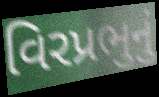
વિરપ્રભુનું